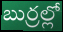
బుర్రల్లో